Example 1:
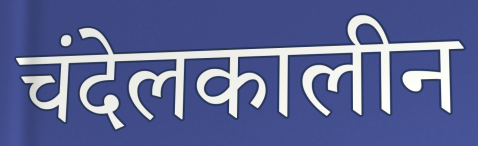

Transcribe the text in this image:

चंदेलकालीन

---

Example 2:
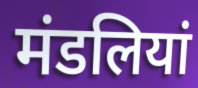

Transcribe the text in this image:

मंडलियां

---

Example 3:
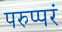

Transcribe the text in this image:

परुप्परं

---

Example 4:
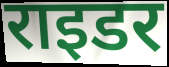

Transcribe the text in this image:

राइडर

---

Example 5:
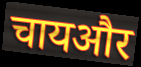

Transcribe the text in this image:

चायऔर